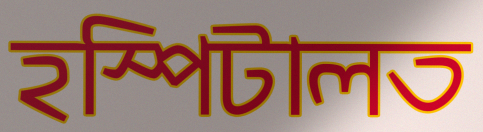
হস্পিটালত